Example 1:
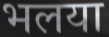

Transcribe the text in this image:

भलया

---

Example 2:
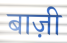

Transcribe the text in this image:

बाज़ी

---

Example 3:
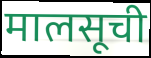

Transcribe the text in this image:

मालसूची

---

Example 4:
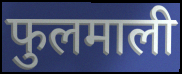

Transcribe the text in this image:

फुलमाली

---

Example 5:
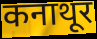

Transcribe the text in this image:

कनाथूर